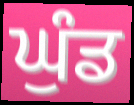
ਘੁੰਡ